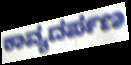
ಕಾವ್ಯದರ್ಪಣ